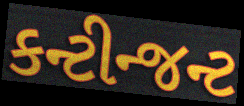
કન્ટીન્જન્ટ